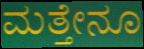
ಮತ್ತೇನೂ